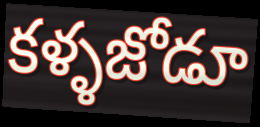
కళ్ళజోడూ